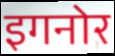
इगनोर